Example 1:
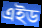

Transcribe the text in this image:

এইড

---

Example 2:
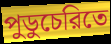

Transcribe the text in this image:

পুডুচেরিতে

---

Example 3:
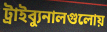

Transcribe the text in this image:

ট্রাইব্যুনালগুলোয়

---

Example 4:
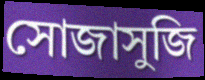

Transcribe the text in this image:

সোজাসুজি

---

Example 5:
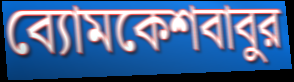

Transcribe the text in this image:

ব্যোমকেশবাবুর